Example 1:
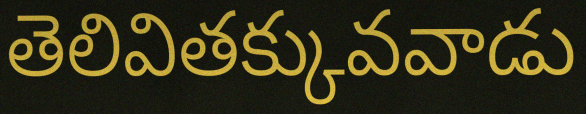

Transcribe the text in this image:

తెలివితక్కువవాడు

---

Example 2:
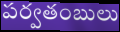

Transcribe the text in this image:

పర్వతంబులు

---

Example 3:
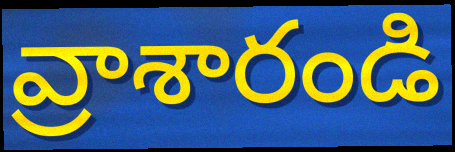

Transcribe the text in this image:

వ్రాశారండి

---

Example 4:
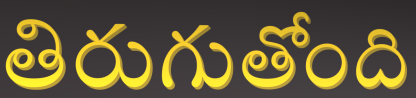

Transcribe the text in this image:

తిరుగుతోంది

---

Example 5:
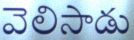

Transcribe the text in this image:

వెలిసాడు